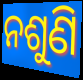
ନଶୁଣି